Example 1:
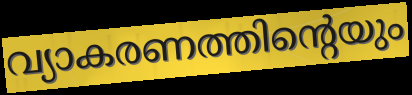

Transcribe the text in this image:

വ്യാകരണത്തിന്റെയും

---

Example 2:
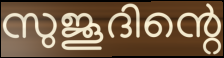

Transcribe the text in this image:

സുജൂദിന്റെ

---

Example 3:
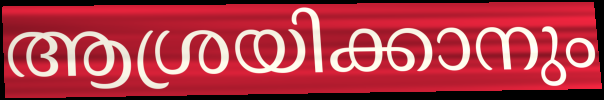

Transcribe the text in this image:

ആശ്രയിക്കാനും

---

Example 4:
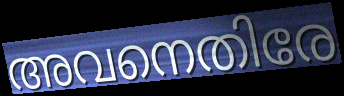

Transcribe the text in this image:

അവനെതിരേ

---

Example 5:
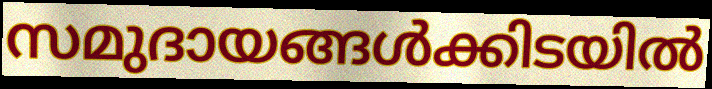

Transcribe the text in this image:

സമുദായങ്ങൾക്കിടയിൽ